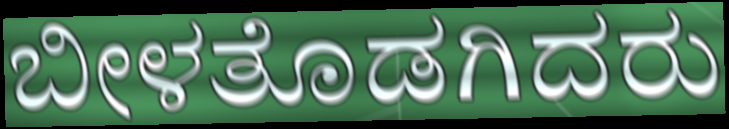
ಬೀಳತೊಡಗಿದರು